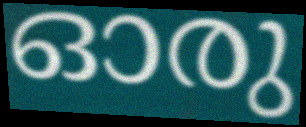
ഓരു